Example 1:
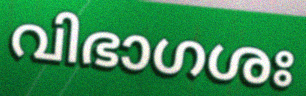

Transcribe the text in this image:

വിഭാഗശഃ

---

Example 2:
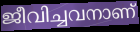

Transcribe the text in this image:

ജീവിച്ചവനാണ്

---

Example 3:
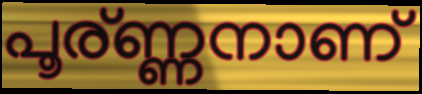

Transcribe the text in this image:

പൂര്ണ്ണനാണ്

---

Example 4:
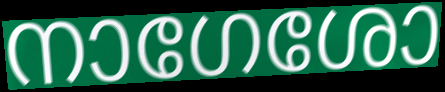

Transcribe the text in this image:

നാഗേശോ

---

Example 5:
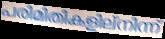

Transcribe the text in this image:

പരിമിതികളില്നിന്ന്